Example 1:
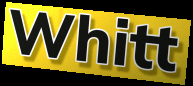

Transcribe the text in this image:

Whitt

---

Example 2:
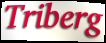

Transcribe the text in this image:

Triberg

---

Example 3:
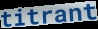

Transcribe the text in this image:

titrant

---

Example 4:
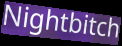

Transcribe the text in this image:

Nightbitch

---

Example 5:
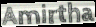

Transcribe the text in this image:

Amirtha